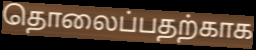
தொலைப்பதற்காக